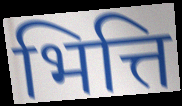
भित्ति